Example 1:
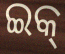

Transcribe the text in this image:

ଇକ୍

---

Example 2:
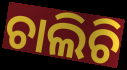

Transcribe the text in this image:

ଚାଲିଚି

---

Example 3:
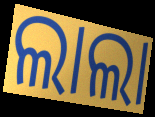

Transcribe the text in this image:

ଲାଲା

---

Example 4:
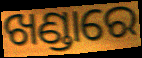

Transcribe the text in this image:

ଖଣ୍ଡାରେ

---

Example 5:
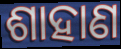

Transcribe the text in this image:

ଶାହାଣ